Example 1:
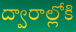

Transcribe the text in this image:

ద్వారాల్లోకి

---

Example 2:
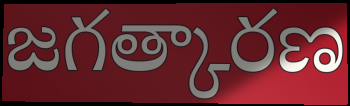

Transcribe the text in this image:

జగత్కారణ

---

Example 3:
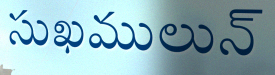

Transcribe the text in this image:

సుఖములున్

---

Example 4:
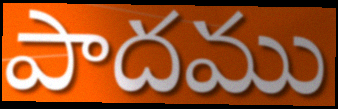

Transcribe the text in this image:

పాదము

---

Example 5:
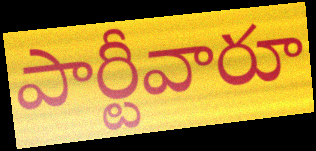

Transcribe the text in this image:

పార్టీవారూ